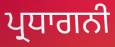
ਪ੍ਰਧਾਗਨੀ